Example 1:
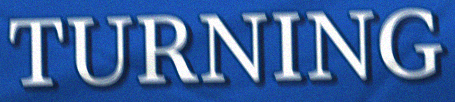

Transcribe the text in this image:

TURNING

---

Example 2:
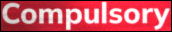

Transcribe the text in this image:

Compulsory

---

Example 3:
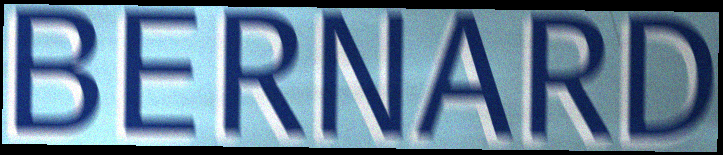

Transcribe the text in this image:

BERNARD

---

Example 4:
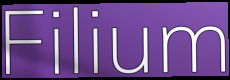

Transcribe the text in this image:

Filium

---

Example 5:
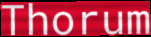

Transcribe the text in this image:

Thorum